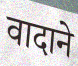
वादाने